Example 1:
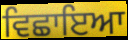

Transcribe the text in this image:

ਵਿਛਾਇਆ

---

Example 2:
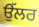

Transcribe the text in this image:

ਉੱਲਰ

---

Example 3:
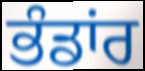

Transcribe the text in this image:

ਭੰਡਾਂਰ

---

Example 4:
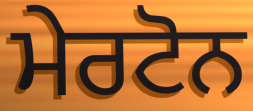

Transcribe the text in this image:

ਮੇਰਟੋਨ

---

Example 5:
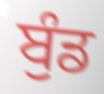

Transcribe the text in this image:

ਬੁੰਡ